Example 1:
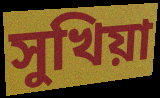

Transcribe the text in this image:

সুখিয়া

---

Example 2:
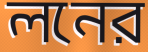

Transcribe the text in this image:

লনের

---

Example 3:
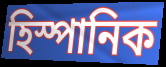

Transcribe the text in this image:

হিস্পানিক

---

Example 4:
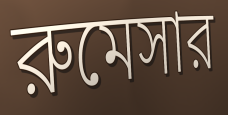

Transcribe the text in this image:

রুমেসার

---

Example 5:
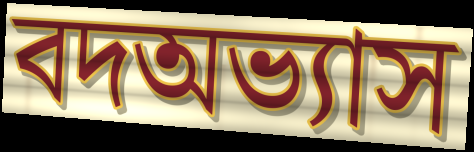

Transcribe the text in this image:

বদঅভ্যাস